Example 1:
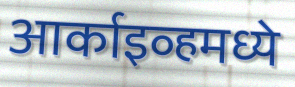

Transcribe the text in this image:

आर्काइव्हमध्ये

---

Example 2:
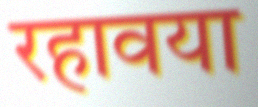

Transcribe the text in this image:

रहावया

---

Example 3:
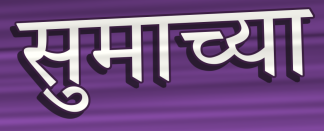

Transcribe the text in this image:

सुमाच्या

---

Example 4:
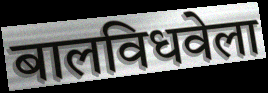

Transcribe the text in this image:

बालविधवेला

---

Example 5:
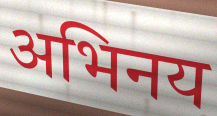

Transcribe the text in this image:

अभिनय